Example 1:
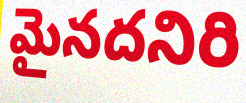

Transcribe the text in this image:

మైనదనిరి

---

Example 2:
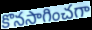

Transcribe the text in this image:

కొనసాగించగా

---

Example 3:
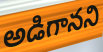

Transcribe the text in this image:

అడిగానని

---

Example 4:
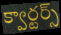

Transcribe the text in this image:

క్వార్టర్స్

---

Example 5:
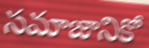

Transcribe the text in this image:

సమాజానికో